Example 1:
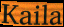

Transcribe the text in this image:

Kaila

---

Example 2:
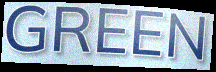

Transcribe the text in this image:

GREEN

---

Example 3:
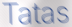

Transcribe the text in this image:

Tatas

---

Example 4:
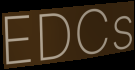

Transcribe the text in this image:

EDCs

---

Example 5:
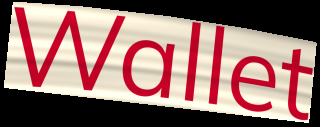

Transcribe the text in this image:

Wallet